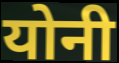
योनी